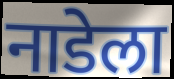
नाडेला